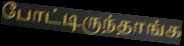
போட்டிருந்தாங்க